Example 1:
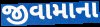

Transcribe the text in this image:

જીવામાના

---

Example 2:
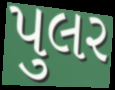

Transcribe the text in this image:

પુલર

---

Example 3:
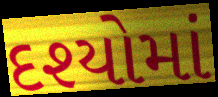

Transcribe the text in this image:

દશ્યોમાં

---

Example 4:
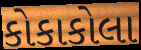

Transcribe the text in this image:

કોકાકોલા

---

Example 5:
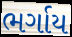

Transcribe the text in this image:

ભર્ગાય